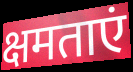
क्षमताएं